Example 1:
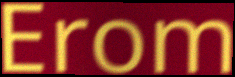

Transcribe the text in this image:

Erom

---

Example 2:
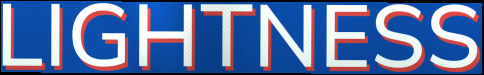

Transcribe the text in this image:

LIGHTNESS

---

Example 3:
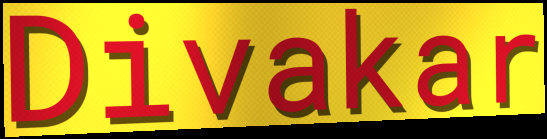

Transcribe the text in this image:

Divakar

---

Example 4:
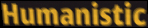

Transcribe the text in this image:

Humanistic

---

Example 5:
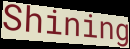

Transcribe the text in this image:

Shining